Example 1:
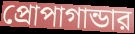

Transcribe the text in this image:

প্রোপাগান্ডার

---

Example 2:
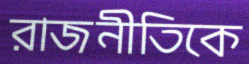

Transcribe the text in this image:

রাজনীতিকে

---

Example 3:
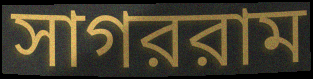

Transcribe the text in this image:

সাগররাম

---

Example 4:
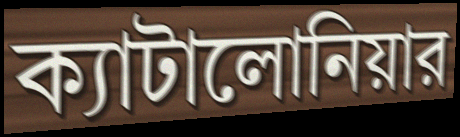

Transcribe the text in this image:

ক্যাটালোনিয়ার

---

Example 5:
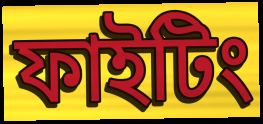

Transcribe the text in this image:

ফাইটিং